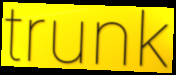
trunk